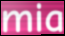
mia